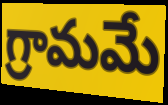
గ్రామమే